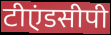
टीएंडसीपी